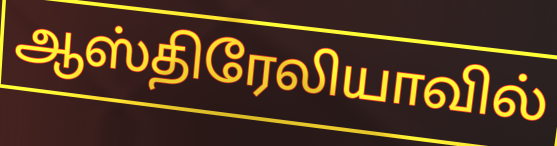
ஆஸ்திரேலியாவில்